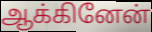
ஆக்கினேன்